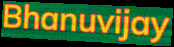
Bhanuvijay